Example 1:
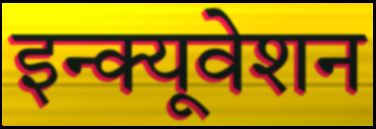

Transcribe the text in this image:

इन्क्यूवेशन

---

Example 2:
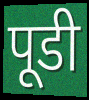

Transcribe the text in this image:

पूडी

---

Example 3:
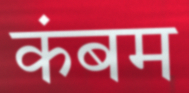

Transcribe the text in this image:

कंबम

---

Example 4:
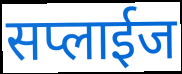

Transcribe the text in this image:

सप्लाईज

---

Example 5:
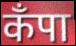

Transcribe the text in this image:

कँपा